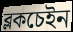
ব্লকচেইন